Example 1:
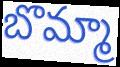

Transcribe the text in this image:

బొమ్మా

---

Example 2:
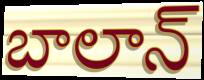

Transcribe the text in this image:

బాలాన్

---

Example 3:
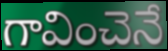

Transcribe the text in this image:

గావించెనే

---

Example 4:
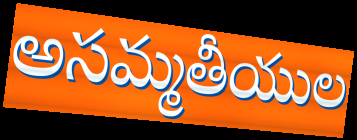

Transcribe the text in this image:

అసమ్మతీయుల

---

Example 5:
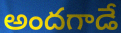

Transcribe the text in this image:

అందగాడే